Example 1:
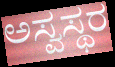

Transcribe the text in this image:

ಅಸ್ವಸ್ಥರ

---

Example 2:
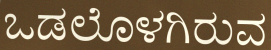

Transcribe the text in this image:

ಒಡಲೊಳಗಿರುವ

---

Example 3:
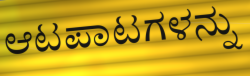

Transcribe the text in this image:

ಆಟಪಾಟಗಳನ್ನು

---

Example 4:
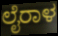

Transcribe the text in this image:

ಲೈರಾಳ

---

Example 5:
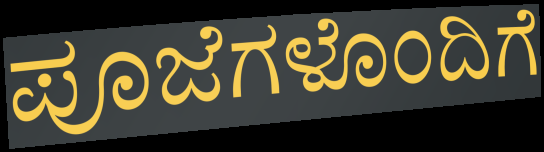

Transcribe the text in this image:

ಪೂಜೆಗಳೊಂದಿಗೆ